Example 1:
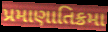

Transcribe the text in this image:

પ્રમાણાતિક્રમા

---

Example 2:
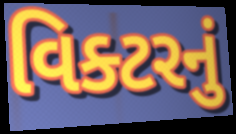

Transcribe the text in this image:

વિક્ટરનું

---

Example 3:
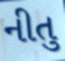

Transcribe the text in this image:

નીતુ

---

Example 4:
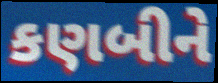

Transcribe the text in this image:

કણબીને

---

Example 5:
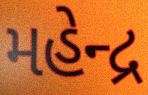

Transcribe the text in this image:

મહેન્દ્ર